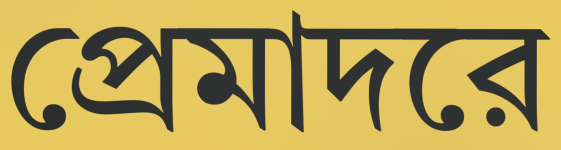
প্রেমাদরে